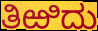
ತಿಱಿದು